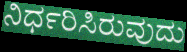
ನಿರ್ಧರಿಸಿರುವುದು